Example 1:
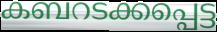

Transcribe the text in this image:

കബറടക്കപ്പെട്ട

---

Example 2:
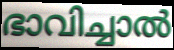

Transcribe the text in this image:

ഭാവിച്ചാൽ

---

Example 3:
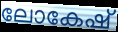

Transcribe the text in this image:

ലോകേഷ്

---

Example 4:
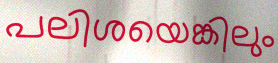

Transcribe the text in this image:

പലിശയെങ്കിലും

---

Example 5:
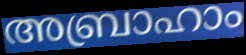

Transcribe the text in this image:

അബ്രാഹാം